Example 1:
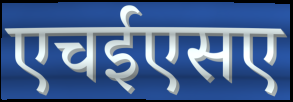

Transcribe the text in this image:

एचईएसए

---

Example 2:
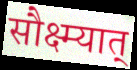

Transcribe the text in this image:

सौक्ष्म्यात्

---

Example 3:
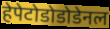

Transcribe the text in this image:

हेपेटोडोडोडेनल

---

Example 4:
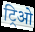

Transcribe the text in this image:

ट्रिओ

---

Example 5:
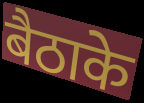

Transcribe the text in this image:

बैठाके